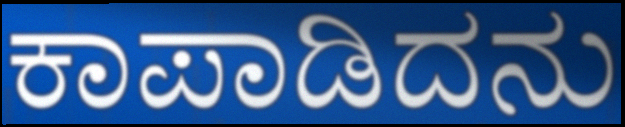
ಕಾಪಾಡಿದನು